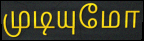
முடியுமோ